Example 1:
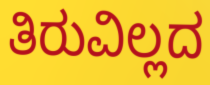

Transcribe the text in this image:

ತಿರುವಿಲ್ಲದ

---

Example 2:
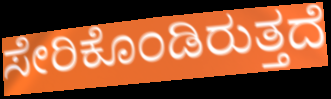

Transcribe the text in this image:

ಸೇರಿಕೊಂಡಿರುತ್ತದೆ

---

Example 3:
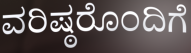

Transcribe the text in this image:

ವರಿಷ್ಠರೊಂದಿಗೆ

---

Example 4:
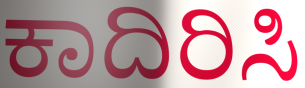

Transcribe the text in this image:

ಕಾದಿರಿಸಿ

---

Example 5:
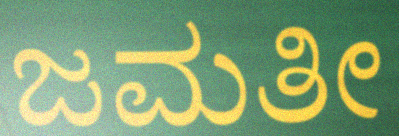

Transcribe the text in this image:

ಜಮತೀ